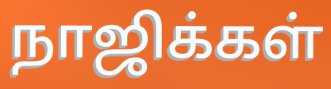
நாஜிக்கள்